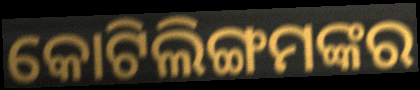
କୋଟିଲିଙ୍ଗମଙ୍କର